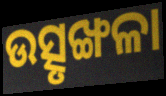
ଉତ୍ସୃଙ୍ଖଳା